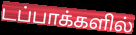
டப்பாக்களில்